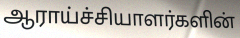
ஆராய்ச்சியாளர்களின்